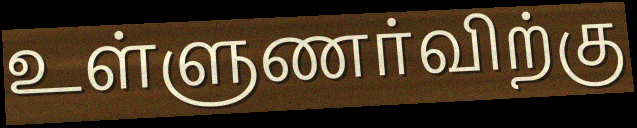
உள்ளுணர்விற்கு